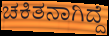
ಚಕಿತನಾಗಿದ್ದೆ